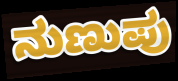
ನುಣುಪು